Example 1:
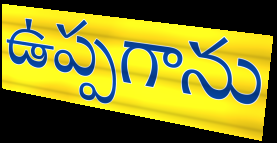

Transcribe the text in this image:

ఉప్పగాను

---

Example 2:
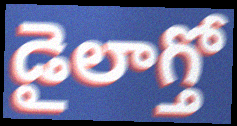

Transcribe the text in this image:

డైలాగ్తో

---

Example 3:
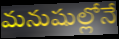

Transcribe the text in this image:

మనుషుల్లోనే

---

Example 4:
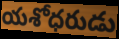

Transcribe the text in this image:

యశోధరుడు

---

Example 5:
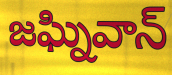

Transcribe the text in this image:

జఘ్నివాన్